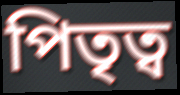
পিতৃত্ব